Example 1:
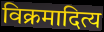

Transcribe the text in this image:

विक्रमादित्य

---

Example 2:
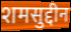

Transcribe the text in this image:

शमसुद्दीन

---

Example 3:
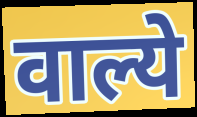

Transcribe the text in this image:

वाल्ये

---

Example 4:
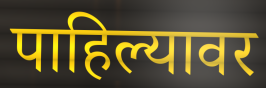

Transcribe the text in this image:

पाहिल्‍यावर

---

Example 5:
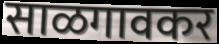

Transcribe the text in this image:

साळगावकर